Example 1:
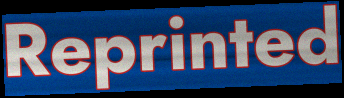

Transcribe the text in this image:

Reprinted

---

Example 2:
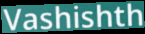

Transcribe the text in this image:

Vashishth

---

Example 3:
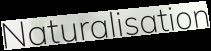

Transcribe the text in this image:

Naturalisation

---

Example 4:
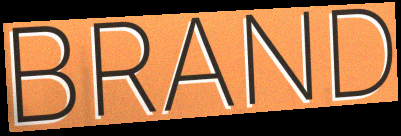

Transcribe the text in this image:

BRAND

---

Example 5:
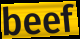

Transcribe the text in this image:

beef